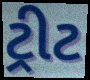
ટ્રીટ